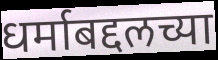
धर्माबद्दलच्या